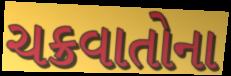
ચક્રવાતોના